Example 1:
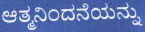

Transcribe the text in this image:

ಆತ್ಮನಿಂದನೆಯನ್ನು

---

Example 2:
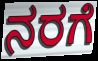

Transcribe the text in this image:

ನರಗೆ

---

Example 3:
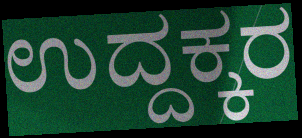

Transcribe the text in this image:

ಉದ್ದಕ್ಕರ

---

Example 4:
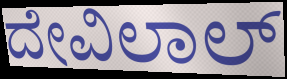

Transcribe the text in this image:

ದೇವಿಲಾಲ್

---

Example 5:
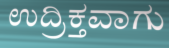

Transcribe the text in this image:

ಉದ್ರಿಕ್ತವಾಗು